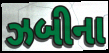
ઝબીના